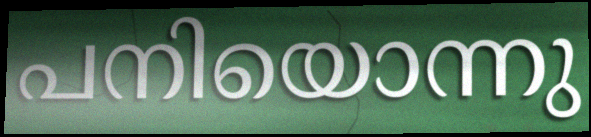
പനിയൊന്നു